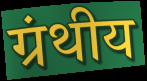
ग्रंथीय